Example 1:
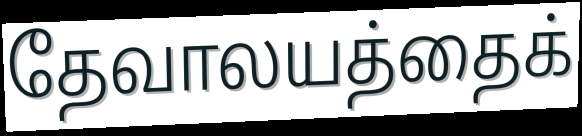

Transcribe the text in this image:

தேவாலயத்தைக்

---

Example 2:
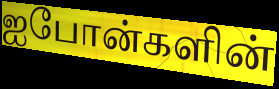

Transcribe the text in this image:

ஐபோன்களின்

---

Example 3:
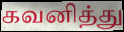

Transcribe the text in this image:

கவனித்து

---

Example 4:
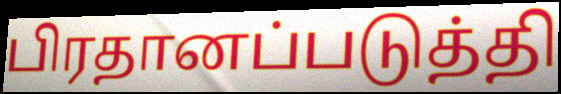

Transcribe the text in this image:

பிரதானப்படுத்தி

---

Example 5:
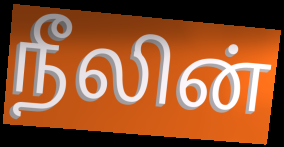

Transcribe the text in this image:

நீலின்